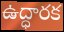
ఉద్ధారక